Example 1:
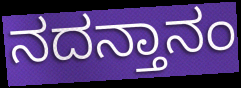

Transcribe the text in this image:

ನದನ್ತಾನಂ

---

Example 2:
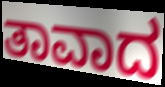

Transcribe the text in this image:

ತಾವಾದ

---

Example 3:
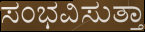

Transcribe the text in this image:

ಸಂಭವಿಸುತ್ತಾ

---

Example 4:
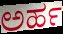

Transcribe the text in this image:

ಅರ್ಹ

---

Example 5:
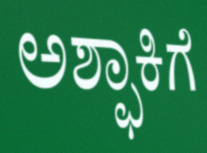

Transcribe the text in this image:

ಅಶ್ಫಾಕಿಗೆ